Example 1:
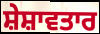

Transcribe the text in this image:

ਸ਼ੇਸ਼ਾਵਤਾਰ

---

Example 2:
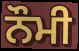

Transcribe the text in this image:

ਨੌਮੀ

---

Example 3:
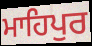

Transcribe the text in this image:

ਮਾਹਿਪੁਰ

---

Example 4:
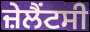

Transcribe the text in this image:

ਜ਼ੇਲੈਂਟਸੀ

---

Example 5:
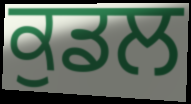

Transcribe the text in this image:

ਕੁਡਲ